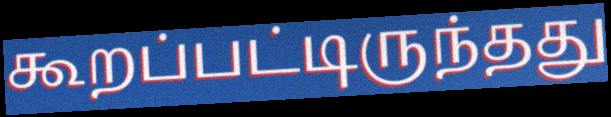
கூறப்பட்டிருந்தது